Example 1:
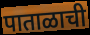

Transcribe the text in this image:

पाताळाची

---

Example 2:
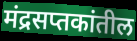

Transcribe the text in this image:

मंद्रसप्तकांतील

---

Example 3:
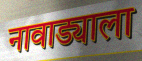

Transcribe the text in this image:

नावाड्याला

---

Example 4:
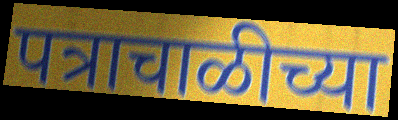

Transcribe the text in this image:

पत्राचाळीच्या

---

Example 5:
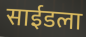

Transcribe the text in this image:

साईडला